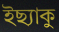
ইছ্যাকু